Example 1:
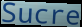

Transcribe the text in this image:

Sucre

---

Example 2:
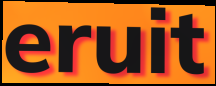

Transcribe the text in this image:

eruit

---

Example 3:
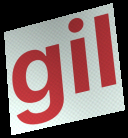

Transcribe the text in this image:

gil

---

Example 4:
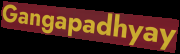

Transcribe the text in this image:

Gangapadhyay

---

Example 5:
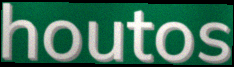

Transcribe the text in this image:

houtos